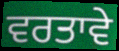
ਵਰਤਾਵੇ